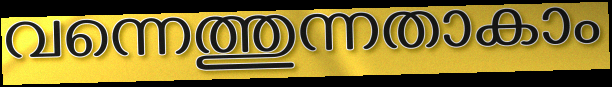
വന്നെത്തുന്നതാകാം